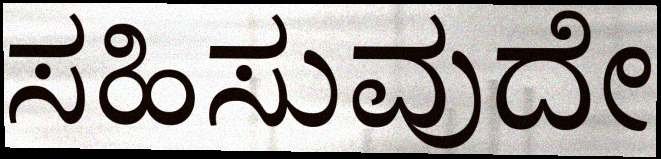
ಸಹಿಸುವುದೇ